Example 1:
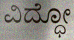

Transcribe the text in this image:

ವಿದ್ಧೋ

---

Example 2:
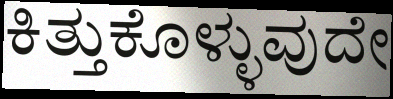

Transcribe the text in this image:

ಕಿತ್ತುಕೊಳ್ಳುವುದೇ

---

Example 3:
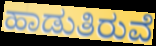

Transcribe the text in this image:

ಹಾಡುತಿರುವೆ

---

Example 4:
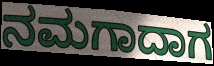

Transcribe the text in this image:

ನಮಗಾದಾಗ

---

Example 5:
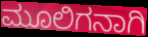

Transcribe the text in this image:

ಮೂಲಿಗನಾಗಿ